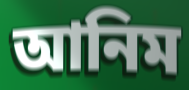
আনিম